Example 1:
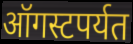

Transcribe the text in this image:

ऑगस्टपर्यत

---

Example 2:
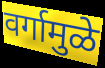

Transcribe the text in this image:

वर्गामुळे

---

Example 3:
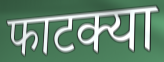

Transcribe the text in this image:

फाटक्या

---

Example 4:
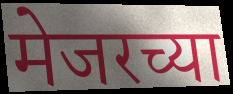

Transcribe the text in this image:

मेजरच्या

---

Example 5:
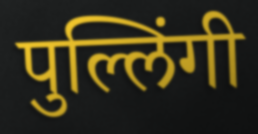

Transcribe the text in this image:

पुल्लिंगी